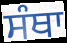
ਸੰਥਾ